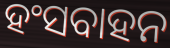
ହଂସବାହନ